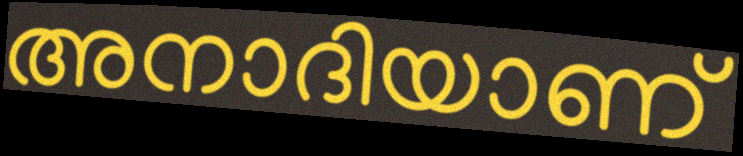
അനാദിയാണ്